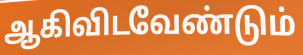
ஆகிவிடவேண்டும்